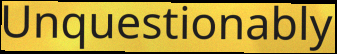
Unquestionably